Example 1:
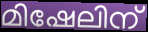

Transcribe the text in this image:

മിഷേലിന്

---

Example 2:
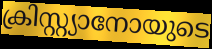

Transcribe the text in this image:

ക്രിസ്റ്റ്യാനോയുടെ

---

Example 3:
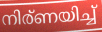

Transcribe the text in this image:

നിര്ണയിച്ച്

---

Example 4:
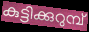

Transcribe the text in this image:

കുട്ടിക്കുറുമ്പ്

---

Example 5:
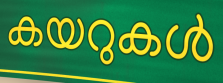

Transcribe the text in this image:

കയറുകൾ